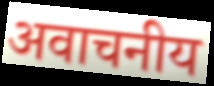
अवाचनीय